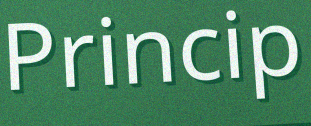
Princip